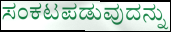
ಸಂಕಟಪಡುವುದನ್ನು